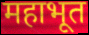
महाभूत